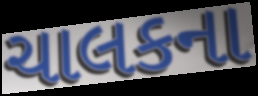
ચાલકના